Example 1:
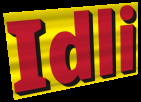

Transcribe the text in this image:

Idli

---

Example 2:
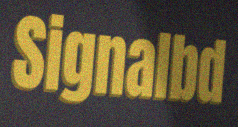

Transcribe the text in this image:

Signalbd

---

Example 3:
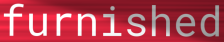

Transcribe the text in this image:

furnished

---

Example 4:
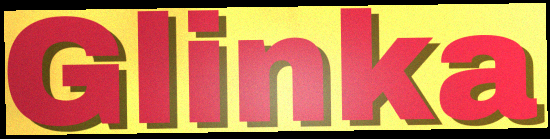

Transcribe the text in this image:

Glinka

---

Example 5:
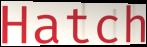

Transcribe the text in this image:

Hatch